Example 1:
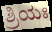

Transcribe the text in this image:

ಶ್ರಿಯಃ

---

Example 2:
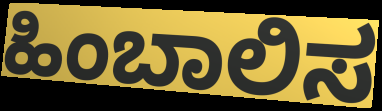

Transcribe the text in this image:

ಹಿಂಬಾಲಿಸ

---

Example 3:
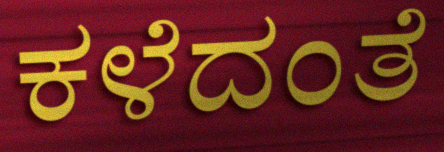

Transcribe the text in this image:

ಕಳೆದಂತೆ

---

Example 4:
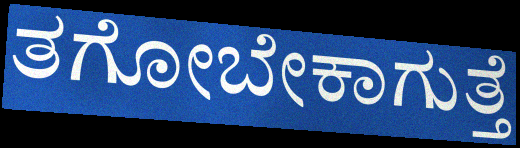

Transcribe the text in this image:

ತಗೋಬೇಕಾಗುತ್ತೆ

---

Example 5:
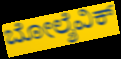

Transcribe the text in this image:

ಬೋಲ್ಶೆವಿಕ್